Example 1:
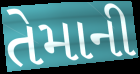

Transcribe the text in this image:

તેમાની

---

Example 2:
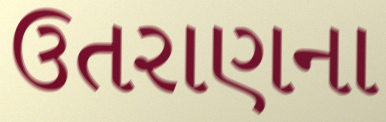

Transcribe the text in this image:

ઉતરાણના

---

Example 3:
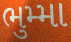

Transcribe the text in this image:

ભુમ્મા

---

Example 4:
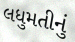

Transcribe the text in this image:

લધુમતીનું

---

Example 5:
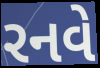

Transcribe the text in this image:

રનવે